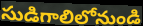
సుడిగాలిలోనుండి